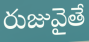
రుజువైతే